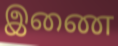
இணை